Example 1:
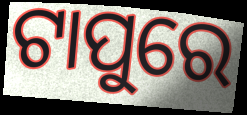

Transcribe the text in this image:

ଟାପୁରେ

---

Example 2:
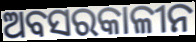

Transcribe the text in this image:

ଅବସରକାଳୀନ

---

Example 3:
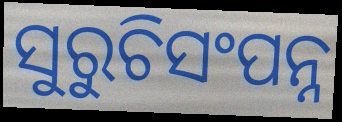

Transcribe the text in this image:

ସୁରୁଚିସଂପନ୍ନ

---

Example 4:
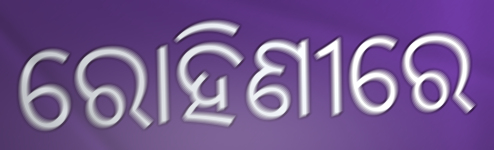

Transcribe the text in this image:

ରୋହିଣୀରେ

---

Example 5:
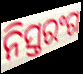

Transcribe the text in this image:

ନିସ୍ତରଂଗ